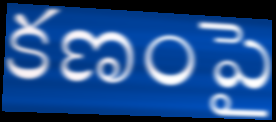
కణంపై